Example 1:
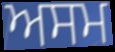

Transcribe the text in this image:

ਅਸਮ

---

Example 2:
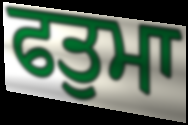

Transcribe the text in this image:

ਫਤੁਮਾ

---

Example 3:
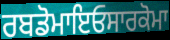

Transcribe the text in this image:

ਰਬਡੋਮਾਇਓਸਾਰਕੋਮਾ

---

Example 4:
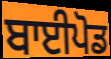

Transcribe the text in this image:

ਬਾਈਪੋਡ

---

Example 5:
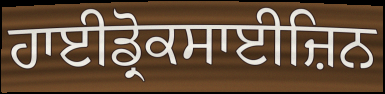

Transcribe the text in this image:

ਹਾਈਡ੍ਰੋਕਸਾਈਜ਼ਿਨ